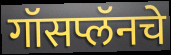
गॉसप्लॅनचे